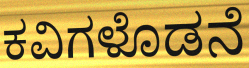
ಕವಿಗಳೊಡನೆ